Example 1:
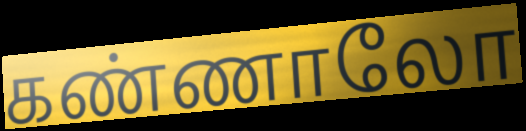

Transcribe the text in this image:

கண்ணாலோ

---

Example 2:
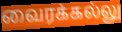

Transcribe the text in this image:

வைரக்கல்லு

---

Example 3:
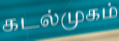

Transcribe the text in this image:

கடல்முகம்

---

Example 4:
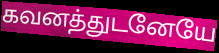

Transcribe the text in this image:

கவனத்துடனேயே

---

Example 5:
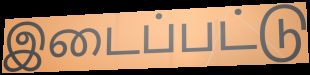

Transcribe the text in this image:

இடைப்பட்டு